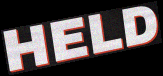
HELD